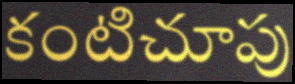
కంటిచూపు